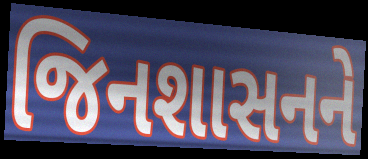
જિનશાસનને